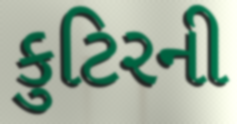
કુટિરની